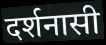
दर्शनासी